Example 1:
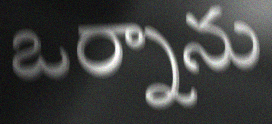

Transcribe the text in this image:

ఒర్నాను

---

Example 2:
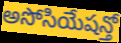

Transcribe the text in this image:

అసోసియేషన్తో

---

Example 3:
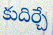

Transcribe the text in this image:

కుదిర్చే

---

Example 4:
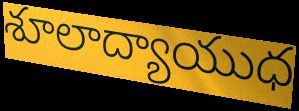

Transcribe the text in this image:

శూలాద్యాయుధ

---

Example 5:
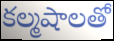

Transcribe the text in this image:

కల్మషాలతో